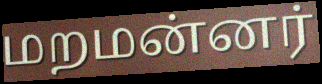
மறமன்னர்